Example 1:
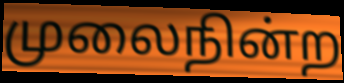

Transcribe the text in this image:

முலைநின்ற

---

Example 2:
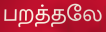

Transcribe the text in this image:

பறத்தலே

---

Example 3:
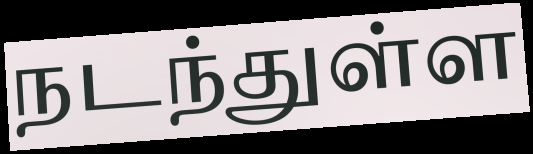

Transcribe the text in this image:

நடந்துள்ள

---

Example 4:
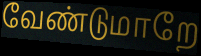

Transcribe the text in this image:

வேண்டுமாறே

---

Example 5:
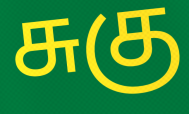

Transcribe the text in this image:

சுகு